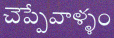
చెప్పేవాళ్ళం